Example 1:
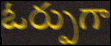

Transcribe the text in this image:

ఓర్పుగా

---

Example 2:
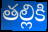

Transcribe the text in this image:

తల్లికి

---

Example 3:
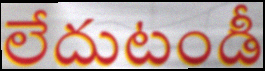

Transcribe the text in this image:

లేదుటండీ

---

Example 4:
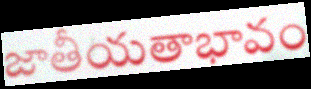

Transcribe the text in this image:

జాతీయతాభావం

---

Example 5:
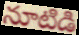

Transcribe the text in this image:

నూటిడి